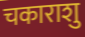
चकाराशु